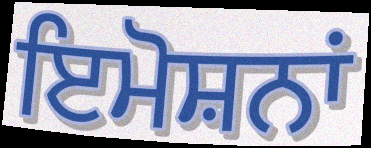
ਇਮੋਸ਼ਨਾਂ